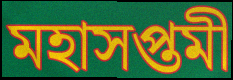
মহাসপ্তমী